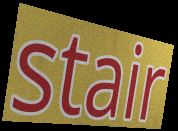
stair